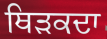
ਥਿੜਕਦਾ